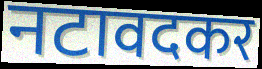
नटावदकर